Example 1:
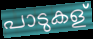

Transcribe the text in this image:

പാടുകള്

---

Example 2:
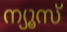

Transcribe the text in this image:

ന്യൂസ്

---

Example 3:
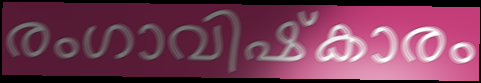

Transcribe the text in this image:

രംഗാവിഷ്‌കാരം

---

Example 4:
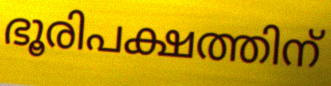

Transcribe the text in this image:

ഭൂരിപക്ഷത്തിന്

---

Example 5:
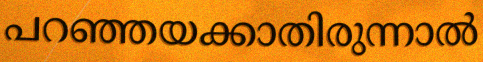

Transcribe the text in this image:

പറഞ്ഞയക്കാതിരുന്നാൽ